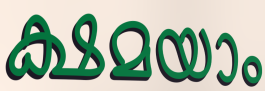
ക്ഷമയാം